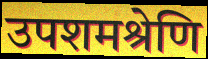
उपशमश्रेणि